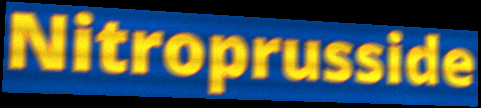
Nitroprusside